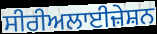
ਸੀਰੀਅਲਾਈਜ਼ੇਸ਼ਨ